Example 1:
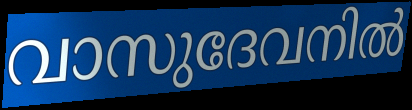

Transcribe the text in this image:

വാസുദേവനിൽ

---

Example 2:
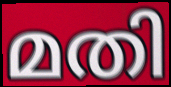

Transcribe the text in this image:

മതി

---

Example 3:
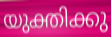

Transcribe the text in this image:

യുക്തിക്കു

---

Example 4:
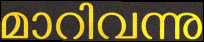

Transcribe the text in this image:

മാറിവന്നു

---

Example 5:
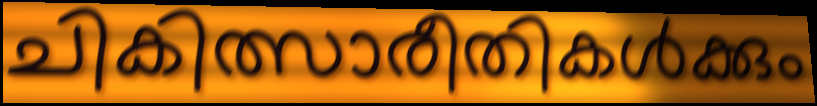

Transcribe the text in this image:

ചികിത്സാരീതികൾക്കും